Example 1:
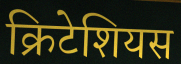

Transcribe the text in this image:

क्रिटेशियस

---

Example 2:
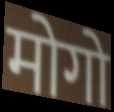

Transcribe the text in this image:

मोगो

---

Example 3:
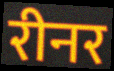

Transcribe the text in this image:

रीनर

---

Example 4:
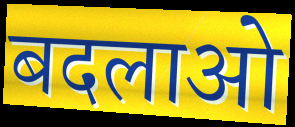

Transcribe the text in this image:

बदलाओ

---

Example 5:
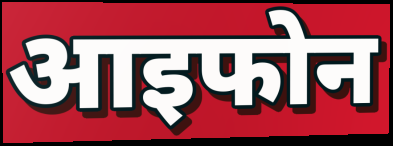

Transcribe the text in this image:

आइफोन